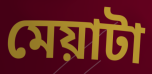
মেয়াটা